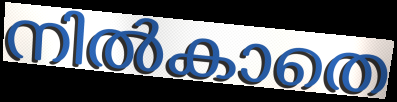
നിൽകാതെ